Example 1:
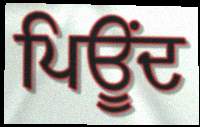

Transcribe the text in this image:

ਪਿਊਂਦ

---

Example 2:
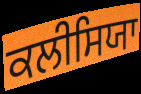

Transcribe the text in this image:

ਕਲੀਸਿਯਾ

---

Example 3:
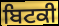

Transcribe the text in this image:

ਬਿਟਕੀ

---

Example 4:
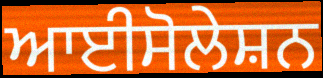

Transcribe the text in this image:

ਆਈਸੋਲੇਸ਼ਨ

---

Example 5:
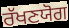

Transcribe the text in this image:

ਰੱਖਣਯੋਗ